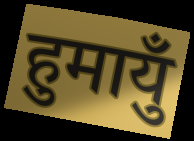
हुमायुँ